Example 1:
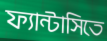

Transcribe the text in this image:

ফ্যান্টাসিতে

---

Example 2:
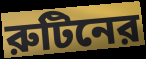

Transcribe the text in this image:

রুটিনের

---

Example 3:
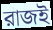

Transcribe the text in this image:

রাজই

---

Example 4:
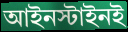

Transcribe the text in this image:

আইনস্টাইনই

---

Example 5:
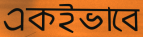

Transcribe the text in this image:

একইভাবে